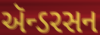
ઍન્ડરસન